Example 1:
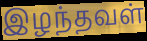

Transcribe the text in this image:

இழந்தவள்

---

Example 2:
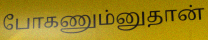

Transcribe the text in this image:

போகணும்னுதான்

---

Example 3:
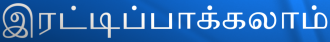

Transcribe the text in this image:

இரட்டிப்பாக்கலாம்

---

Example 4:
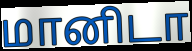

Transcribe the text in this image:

மானிடா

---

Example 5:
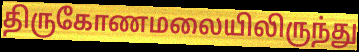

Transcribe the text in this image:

திருகோணமலையிலிருந்து